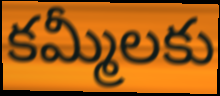
కమ్మీలకు